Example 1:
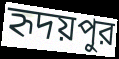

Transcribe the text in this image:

হৃদয়পুর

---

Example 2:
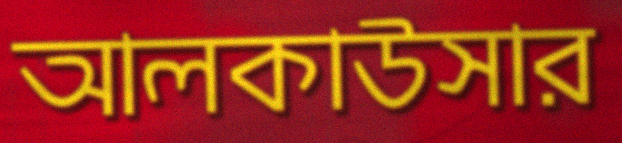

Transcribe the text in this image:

আলকাউসার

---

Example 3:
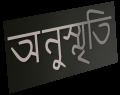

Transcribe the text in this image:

অনুস্মৃতি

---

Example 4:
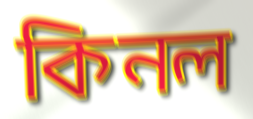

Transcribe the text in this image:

কিনল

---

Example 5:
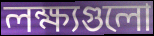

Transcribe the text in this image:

লক্ষ্যগুলো